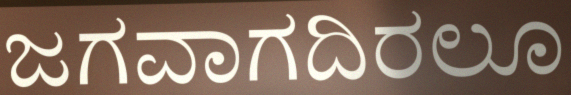
ಜಗವಾಗದಿರಲೂ